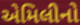
એમિલીનો